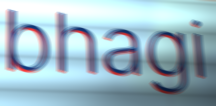
bhagi